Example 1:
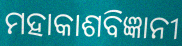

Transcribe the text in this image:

ମହାକାଶବିଜ୍ଞାନୀ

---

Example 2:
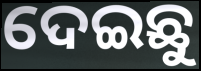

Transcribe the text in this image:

ଦେଇଛୁ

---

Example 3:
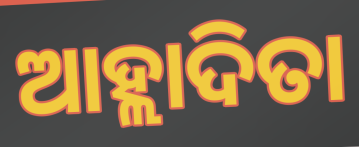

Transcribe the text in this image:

ଆହ୍ଲାଦିତା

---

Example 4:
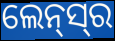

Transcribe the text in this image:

ଲେନ୍‌ସ୍‍ର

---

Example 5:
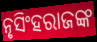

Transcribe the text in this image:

ନୃସିଂହରାଜଙ୍କ